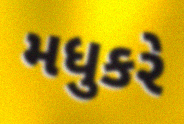
મધુકરે